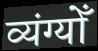
व्यंग्योँ